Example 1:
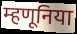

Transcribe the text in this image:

म्हणूनिया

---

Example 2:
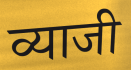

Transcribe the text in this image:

व्याजी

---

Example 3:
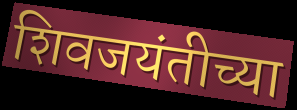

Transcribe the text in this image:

शिवजयंतीच्या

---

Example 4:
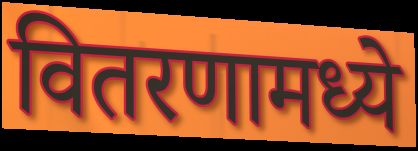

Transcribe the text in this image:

वितरणामध्ये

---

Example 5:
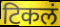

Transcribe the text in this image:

टिकलं